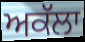
ਅਕੱਲਾ